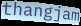
thangjam